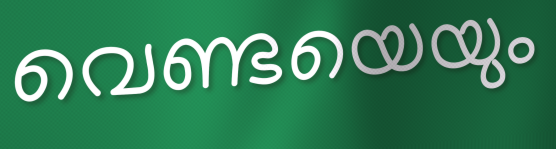
വെണ്ടയെയും